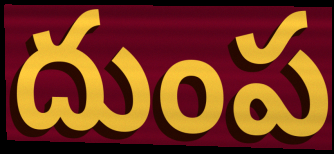
దుంప